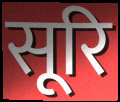
सूरि